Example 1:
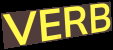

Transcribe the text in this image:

VERB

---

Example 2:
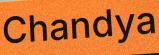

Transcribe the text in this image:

Chandya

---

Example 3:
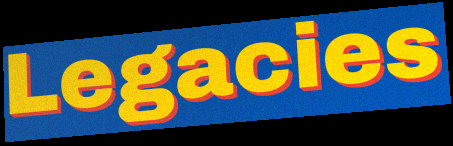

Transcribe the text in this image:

Legacies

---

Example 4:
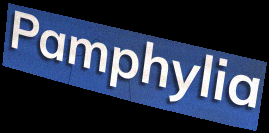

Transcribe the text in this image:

Pamphylia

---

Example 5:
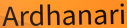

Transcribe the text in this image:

Ardhanari